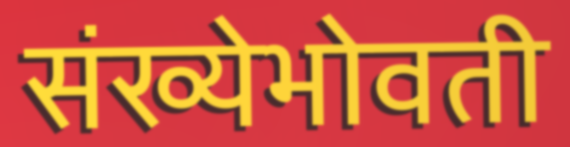
संख्येभोवती